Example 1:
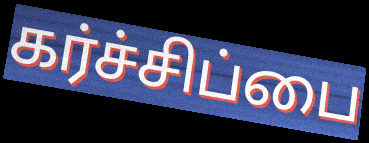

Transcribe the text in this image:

கர்ச்சிப்பை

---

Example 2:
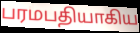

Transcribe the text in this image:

பரமபதியாகிய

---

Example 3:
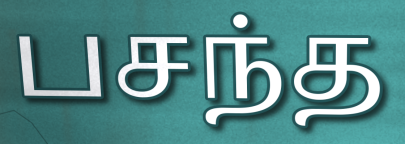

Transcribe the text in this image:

பசந்த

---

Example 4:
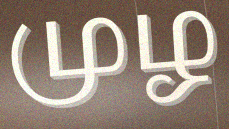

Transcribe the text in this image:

முழ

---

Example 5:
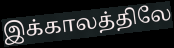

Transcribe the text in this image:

இக்காலத்திலே